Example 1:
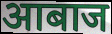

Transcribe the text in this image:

आबाज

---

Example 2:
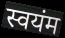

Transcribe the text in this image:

स्वयंम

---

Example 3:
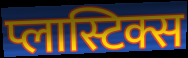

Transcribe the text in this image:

प्लास्टिक्स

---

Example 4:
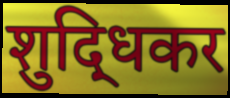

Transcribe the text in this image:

शुद्धिकर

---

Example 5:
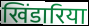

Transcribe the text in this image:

खिंडारिया